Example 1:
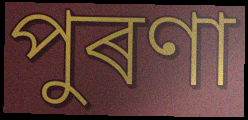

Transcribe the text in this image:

পুৰণা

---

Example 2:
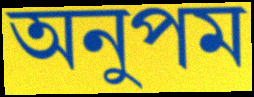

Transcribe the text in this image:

অনুপম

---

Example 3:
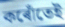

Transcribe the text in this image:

কৰোঁতেই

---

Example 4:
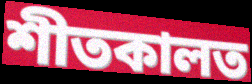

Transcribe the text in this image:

শীতকালত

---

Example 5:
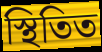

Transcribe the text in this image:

স্থিতিত